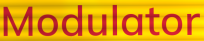
Modulator